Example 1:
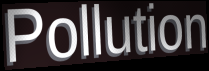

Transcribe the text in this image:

Pollution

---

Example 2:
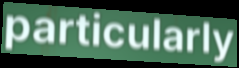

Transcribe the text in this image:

particularly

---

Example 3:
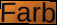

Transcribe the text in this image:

Farb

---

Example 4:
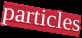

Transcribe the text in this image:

particles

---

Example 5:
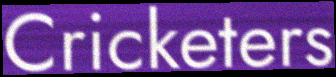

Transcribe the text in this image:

Cricketers